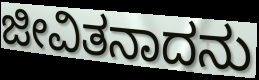
ಜೀವಿತನಾದನು